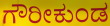
ಗೌರೀಕುಂಡ